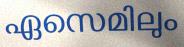
ഏസെമിലും